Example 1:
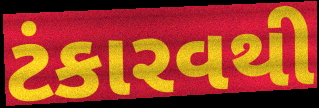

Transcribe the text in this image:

ટંકારવથી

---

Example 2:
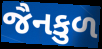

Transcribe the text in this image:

જૈનકુળ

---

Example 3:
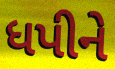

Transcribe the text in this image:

ધપીને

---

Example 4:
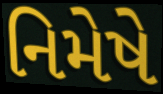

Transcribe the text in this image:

નિમેષે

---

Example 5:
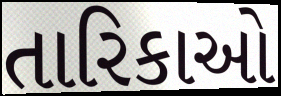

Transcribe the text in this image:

તારિકાઓ